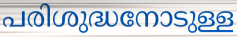
പരിശുദ്ധനോടുള്ള